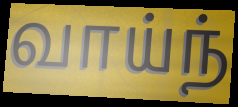
வாய்ந்